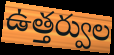
ఉత్తర్వుల